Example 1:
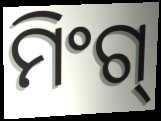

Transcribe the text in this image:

ମିଂଗ୍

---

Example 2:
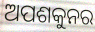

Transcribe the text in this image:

ଅପଶକୁନର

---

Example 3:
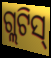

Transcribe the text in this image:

ଗ୍ଲଟିସ୍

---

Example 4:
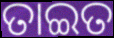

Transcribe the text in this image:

ତାଇତ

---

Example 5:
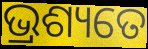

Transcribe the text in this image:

ଭ୍ରଶ୍ୟତେ